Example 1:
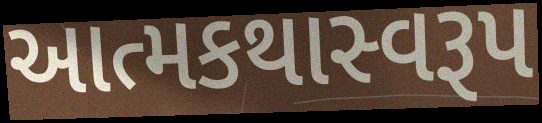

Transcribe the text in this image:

આત્મકથાસ્વરૂપ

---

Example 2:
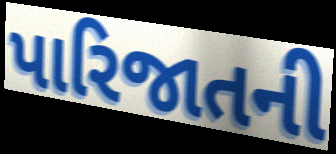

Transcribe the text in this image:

પારિજાતની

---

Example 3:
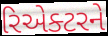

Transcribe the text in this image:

રિએક્ટરને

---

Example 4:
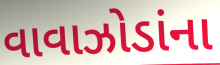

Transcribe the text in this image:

વાવાઝોડાંના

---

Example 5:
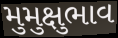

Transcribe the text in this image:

મુમુક્ષુભાવ